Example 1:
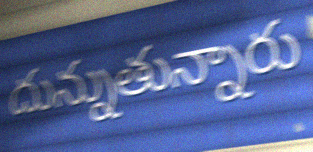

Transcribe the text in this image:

దున్నుతున్నారు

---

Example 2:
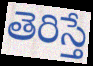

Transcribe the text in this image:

తెరిస్తే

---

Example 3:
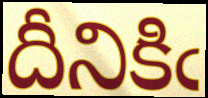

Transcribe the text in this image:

దీనికిఁ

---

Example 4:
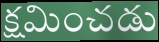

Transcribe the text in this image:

క్షమించడు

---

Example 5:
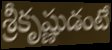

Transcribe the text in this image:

శ్రీకృష్ణుడంటే